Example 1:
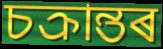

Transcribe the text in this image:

চক্ৰান্তৰ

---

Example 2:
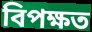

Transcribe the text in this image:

বিপক্ষত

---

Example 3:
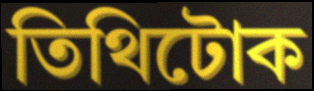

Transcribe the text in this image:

তিথিটোক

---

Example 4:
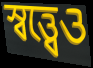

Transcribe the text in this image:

স্বত্ত্বেও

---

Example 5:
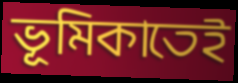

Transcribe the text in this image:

ভূমিকাতেই